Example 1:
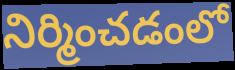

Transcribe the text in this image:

నిర్మించడంలో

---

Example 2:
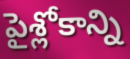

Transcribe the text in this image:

పైశ్లోకాన్ని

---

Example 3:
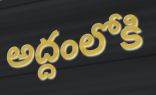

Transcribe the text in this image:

అద్దంలోకి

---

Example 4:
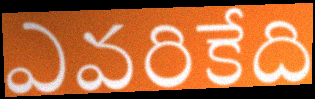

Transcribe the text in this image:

ఎవరికేది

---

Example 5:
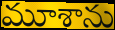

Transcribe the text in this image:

మూశాను